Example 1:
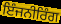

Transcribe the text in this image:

ਇੰਜਨੀਰਿੰਗ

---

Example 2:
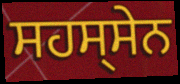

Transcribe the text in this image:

ਸਹਸ੍ਸੇਨ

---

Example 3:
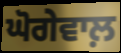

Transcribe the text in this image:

ਘੋਗੇਵਾਲ਼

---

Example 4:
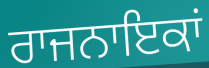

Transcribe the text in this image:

ਰਾਜਨਾਇਕਾਂ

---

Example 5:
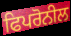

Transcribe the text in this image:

ਫਿਪਰੋਨੀਲ